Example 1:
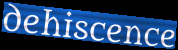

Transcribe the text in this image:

dehiscence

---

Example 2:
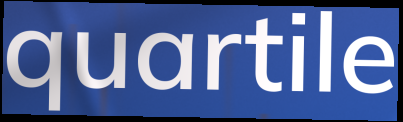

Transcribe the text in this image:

quartile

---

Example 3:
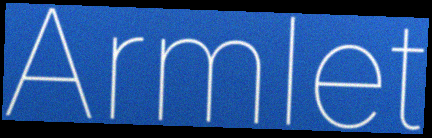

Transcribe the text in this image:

Armlet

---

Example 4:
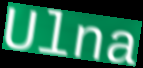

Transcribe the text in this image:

Ulna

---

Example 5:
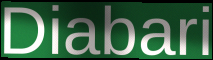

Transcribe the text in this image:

Diabari